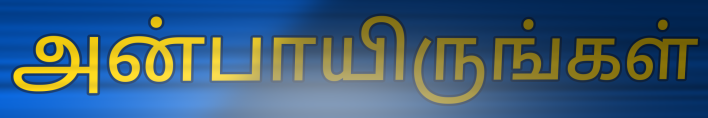
அன்பாயிருங்கள்